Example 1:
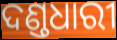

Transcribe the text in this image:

ଦଣ୍ଡଧାରୀ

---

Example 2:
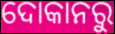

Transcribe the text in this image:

ଦୋକାନରୁ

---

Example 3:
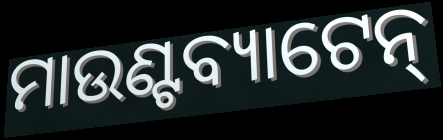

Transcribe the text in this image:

ମାଉଣ୍ଟବ୍ୟାଟେନ୍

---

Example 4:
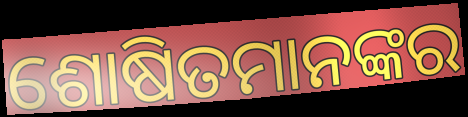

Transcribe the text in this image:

ଶୋଷିତମାନଙ୍କର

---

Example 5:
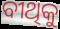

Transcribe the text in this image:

ବୀଥିକୁ